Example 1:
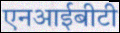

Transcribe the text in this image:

एनआईबीटी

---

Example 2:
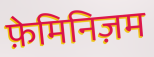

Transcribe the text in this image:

फ़ेमिनिज़म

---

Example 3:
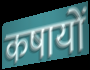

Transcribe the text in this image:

कषायों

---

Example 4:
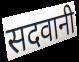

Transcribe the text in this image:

सदवानी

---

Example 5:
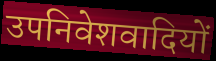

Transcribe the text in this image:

उपनिवेशवादियों